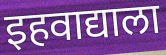
इहवाद्याला